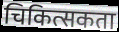
चिकित्सकता